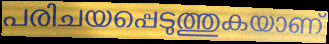
പരിചയപ്പെടുത്തുകയാണ്